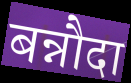
बन्नौदा